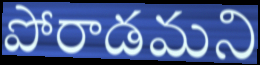
పోరాడమని